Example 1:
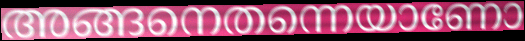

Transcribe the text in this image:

അങ്ങനെതന്നെയാണോ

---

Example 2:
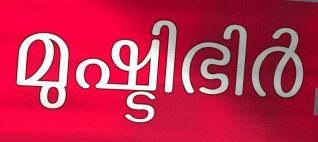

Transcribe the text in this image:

മുഷ്ടിഭിർ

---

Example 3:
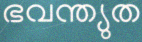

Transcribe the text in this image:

ഭവന്ത്യുത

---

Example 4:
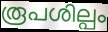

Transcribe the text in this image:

രൂപശില്പം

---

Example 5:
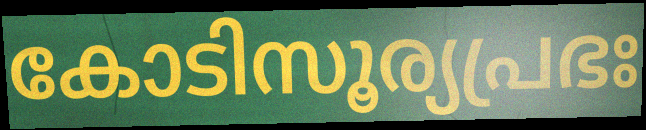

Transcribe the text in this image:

കോടിസൂര്യപ്രഭഃ